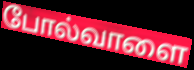
போல்வாளை